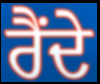
ਰੈਂਦੇ